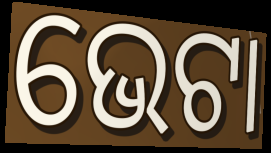
ଭେଟା